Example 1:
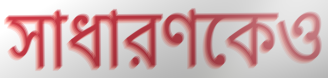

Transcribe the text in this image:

সাধারণকেও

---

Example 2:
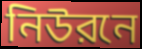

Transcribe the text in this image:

নিউরনে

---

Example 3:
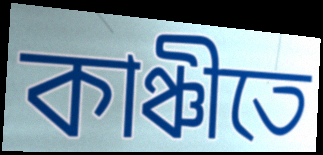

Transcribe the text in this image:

কাঞ্চীতে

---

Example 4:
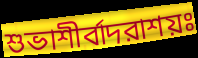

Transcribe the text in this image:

শুভাশীর্বাদরাশয়ঃ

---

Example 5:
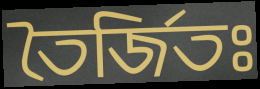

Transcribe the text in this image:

তৈর্জিতঃ